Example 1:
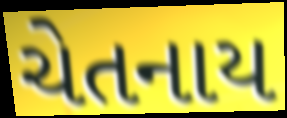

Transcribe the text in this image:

ચેતનાય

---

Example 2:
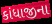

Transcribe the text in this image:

કાંધાજીના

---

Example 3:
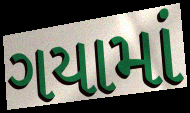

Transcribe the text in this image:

ગયામાં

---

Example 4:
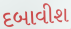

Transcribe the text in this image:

દબાવીશ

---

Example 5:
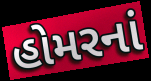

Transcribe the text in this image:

હોમરનાં